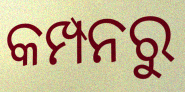
କମ୍ପନରୁ